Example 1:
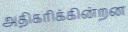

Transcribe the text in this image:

அதிகரிக்கின்றன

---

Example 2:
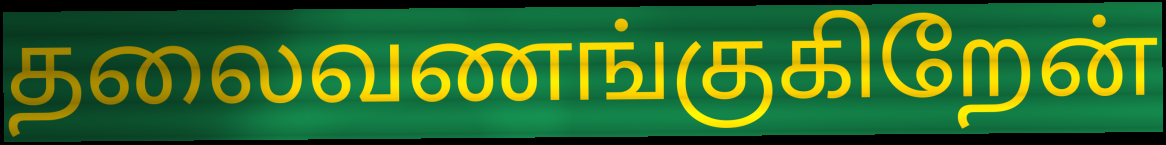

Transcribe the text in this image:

தலைவணங்குகிறேன்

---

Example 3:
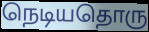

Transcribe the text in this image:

நெடியதொரு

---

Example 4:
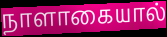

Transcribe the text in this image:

நாளாகையால்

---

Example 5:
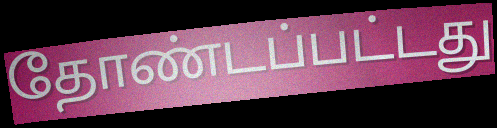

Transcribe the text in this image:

தோண்டப்பட்டது